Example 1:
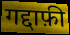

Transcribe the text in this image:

गद्दाफ़ी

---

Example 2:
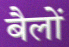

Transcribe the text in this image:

बैलों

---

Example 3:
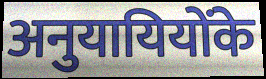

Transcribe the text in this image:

अनुयायियोंके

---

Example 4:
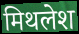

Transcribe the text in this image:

मिथलेश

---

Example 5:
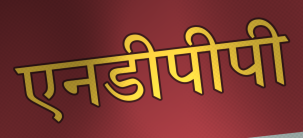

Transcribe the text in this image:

एनडीपीपी